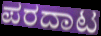
ಪರದಾಟ